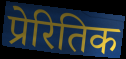
प्रेरितिक